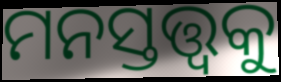
ମନସ୍ତତ୍ତ୍ୱକୁ